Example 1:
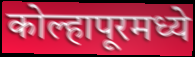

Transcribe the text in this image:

कोल्हापूरमध्ये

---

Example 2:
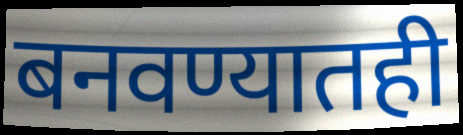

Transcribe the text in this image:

बनवण्यातही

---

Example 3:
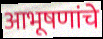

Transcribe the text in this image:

आभूषणांचे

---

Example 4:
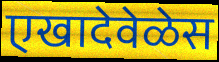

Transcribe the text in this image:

एखादेवेळेस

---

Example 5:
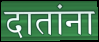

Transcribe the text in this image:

दातांना